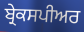
ਬ੍ਰੇਕਸਪੀਅਰ